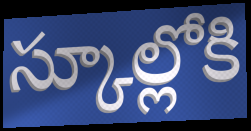
స్కూల్లోకి